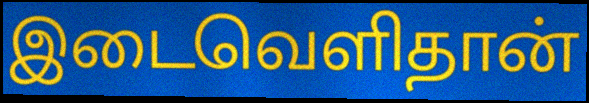
இடைவெளிதான்